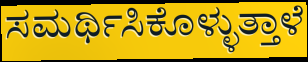
ಸಮರ್ಥಿಸಿಕೊಳ್ಳುತ್ತಾಳೆ